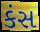
કંસ